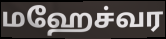
மஹேச்வர